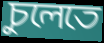
চুলেতে